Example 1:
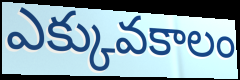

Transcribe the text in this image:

ఎక్కువకాలం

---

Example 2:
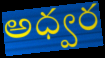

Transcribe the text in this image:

అధ్వర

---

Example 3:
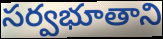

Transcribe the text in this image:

సర్వభూతాని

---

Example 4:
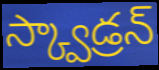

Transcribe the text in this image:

స్క్వాడ్రన్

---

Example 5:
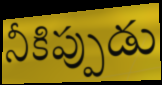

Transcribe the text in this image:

నీకిప్పుడు